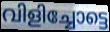
വിളിച്ചോട്ടെ